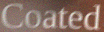
Coated